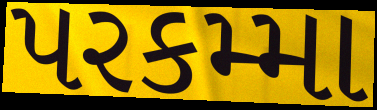
પરકમ્મા